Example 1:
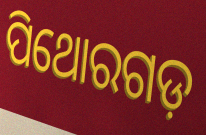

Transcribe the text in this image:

ପିଥୋରଗଡ଼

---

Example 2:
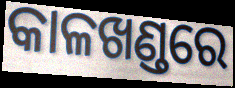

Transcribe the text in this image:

କାଳଖଣ୍ଡରେ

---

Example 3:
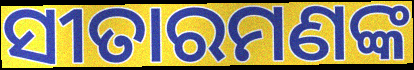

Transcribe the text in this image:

ସୀତାରମଣଙ୍କ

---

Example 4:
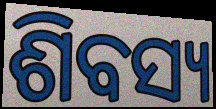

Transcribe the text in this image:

ଶିବସ୍ଯ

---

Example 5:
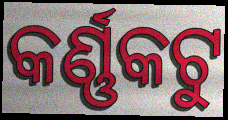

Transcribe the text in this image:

କର୍ଣ୍ଣକଟୁ